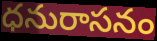
ధనురాసనం